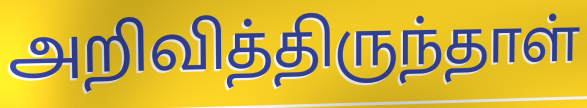
அறிவித்திருந்தாள்